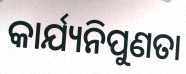
କାର୍ଯ୍ୟନିପୁଣତା